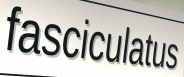
fasciculatus